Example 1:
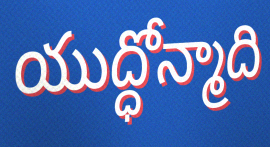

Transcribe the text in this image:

యుద్ధోన్మాది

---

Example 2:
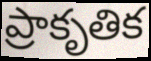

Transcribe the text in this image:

ప్రాకృతిక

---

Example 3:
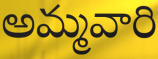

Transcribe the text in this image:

అమ్మవారి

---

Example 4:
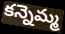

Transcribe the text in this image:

కన్నెమ్మ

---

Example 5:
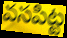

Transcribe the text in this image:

వసపిట్ట